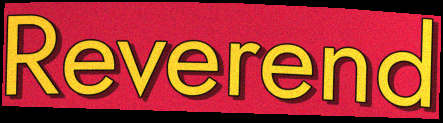
Reverend